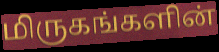
மிருகங்களின்